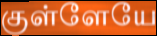
குள்ளேயே